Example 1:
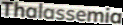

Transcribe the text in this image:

Thalassemia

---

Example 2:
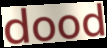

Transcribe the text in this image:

dood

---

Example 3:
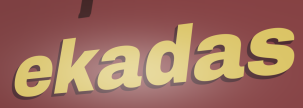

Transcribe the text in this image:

ekadas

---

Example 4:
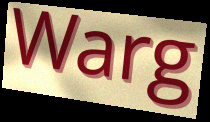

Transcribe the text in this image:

Warg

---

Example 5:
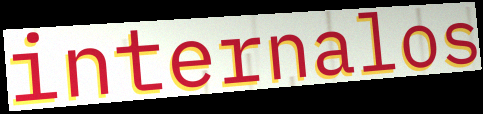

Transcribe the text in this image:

internalos